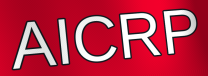
AICRP